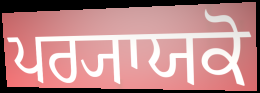
ਪਰ੍ਯਾਯਕੋ